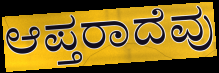
ಆಪ್ತರಾದೆವು